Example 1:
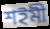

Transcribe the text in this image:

শইমী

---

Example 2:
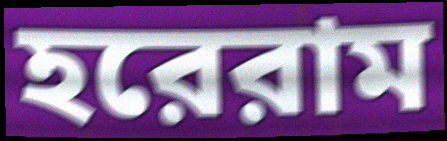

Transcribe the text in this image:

হরেরাম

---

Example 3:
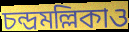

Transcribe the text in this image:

চন্দ্রমল্লিকাও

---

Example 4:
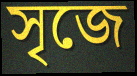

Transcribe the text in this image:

সৃজে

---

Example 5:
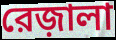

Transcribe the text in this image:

রেজ়ালা